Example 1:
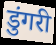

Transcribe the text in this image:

डुंगरी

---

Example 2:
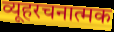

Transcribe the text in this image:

व्यूहरचनात्मक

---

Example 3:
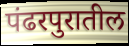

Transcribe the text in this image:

पंढरपुरातील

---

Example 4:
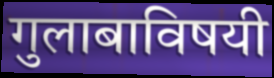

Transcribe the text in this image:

गुलाबाविषयी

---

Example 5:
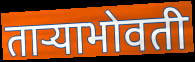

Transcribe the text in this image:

ताऱ्याभोवती